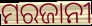
ମରଜାନୀ